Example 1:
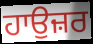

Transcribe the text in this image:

ਹਾਉਜ਼ਰ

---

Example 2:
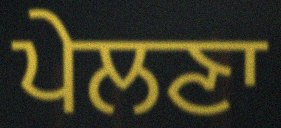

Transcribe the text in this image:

ਪੇਲਣਾ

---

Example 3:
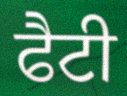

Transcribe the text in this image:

ਫੈਟੀ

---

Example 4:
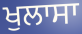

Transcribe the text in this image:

ਖੁਲਾਸਾ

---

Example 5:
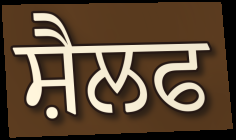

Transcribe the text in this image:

ਸ਼ੈਲਫ